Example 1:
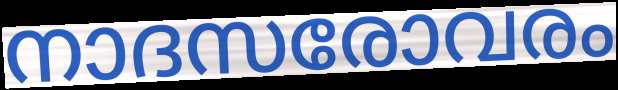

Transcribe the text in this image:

നാദസരോവരം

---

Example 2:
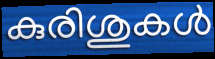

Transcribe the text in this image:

കുരിശുകൾ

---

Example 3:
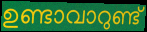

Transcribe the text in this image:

ഉണ്ടാവാറുണ്ട്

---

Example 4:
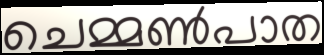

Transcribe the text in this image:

ചെമ്മൺപാത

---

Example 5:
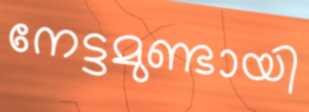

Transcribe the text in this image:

നേട്ടമുണ്ടായി